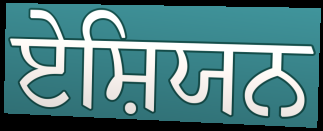
ਏਸ਼ਿਯਨ